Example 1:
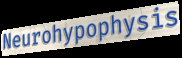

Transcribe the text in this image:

Neurohypophysis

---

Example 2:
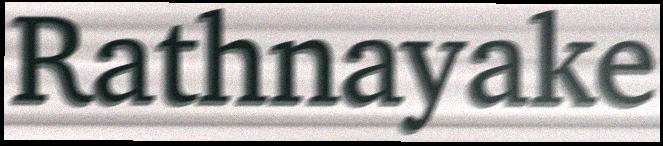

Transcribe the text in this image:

Rathnayake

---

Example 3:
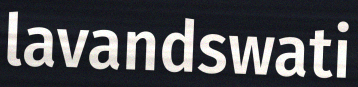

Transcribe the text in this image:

lavandswati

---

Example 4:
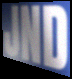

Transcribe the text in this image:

JND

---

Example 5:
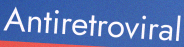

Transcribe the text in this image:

Antiretroviral